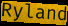
Ryland